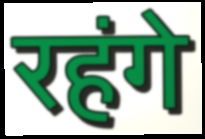
रहंगे